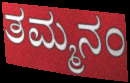
ತಮ್ಮನಂ